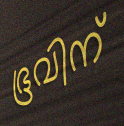
ഭൂവിന്